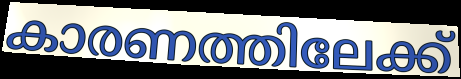
കാരണത്തിലേക്ക്